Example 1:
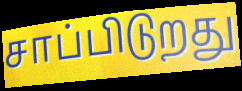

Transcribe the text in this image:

சாப்பிடுறது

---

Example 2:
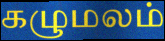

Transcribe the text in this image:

கழுமலம்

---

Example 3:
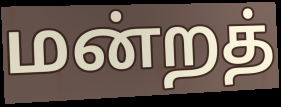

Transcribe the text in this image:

மன்றத்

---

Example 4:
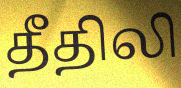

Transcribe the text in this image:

தீதிலி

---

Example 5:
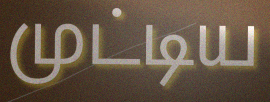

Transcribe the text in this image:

முட்டிய